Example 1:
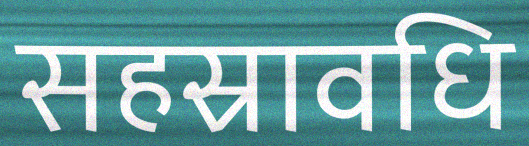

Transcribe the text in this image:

सहस्रावधि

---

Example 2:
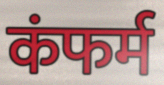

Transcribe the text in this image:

कंफर्म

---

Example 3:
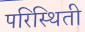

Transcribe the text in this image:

परिस्थिती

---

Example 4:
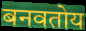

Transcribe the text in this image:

बनवतोय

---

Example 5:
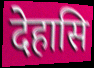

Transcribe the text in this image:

देहासि